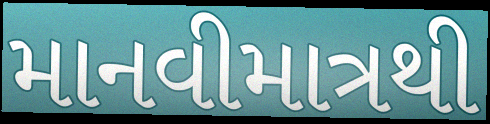
માનવીમાત્રથી